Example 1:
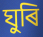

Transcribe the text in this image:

ঘুৰি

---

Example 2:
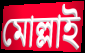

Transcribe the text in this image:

মোল্লাই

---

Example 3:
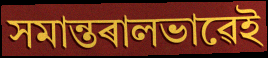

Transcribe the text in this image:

সমান্তৰালভাৱেই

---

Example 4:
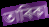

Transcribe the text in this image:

তাৰিকা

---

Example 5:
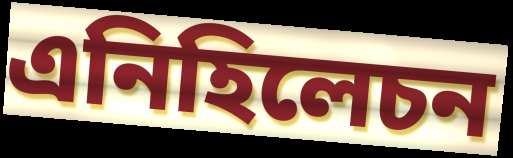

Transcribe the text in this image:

এনিহিলেচন